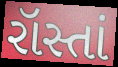
રૉસ્તાં